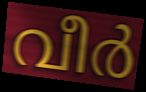
വീർ